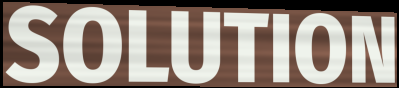
SOLUTION